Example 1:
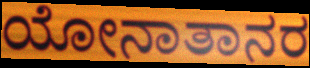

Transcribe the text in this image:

ಯೋನಾತಾನರ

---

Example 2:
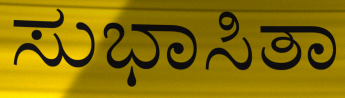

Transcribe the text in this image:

ಸುಭಾಸಿತಾ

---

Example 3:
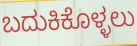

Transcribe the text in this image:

ಬದುಕಿಕೊಳ್ಳಲು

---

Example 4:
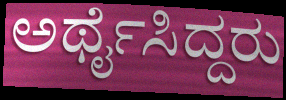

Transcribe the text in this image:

ಅರ್ಥೈಸಿದ್ದರು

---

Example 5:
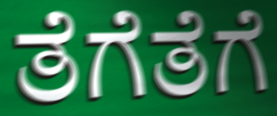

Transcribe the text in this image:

ತೆಗೆತೆಗೆ